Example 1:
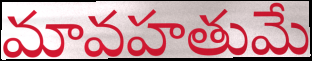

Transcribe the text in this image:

మావహతుమే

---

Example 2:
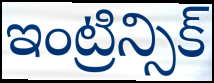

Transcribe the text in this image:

ఇంట్రిన్సిక్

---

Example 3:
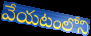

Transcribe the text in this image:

వేయటంలోని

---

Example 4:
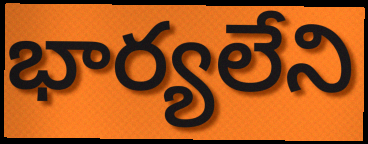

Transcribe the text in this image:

భార్యలేని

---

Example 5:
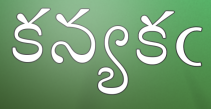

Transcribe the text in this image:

కన్యకఁ